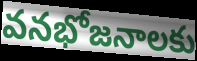
వనభోజనాలకు